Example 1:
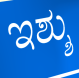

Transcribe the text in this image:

ಇಶ್ಶು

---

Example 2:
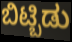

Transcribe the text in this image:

ಬಿಟ್ಬಿಡು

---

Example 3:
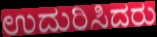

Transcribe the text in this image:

ಉದುರಿಸಿದರು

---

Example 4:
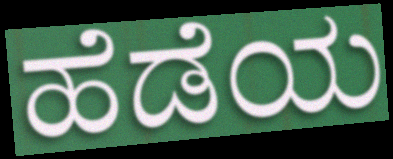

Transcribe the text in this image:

ಹೆಡೆಯ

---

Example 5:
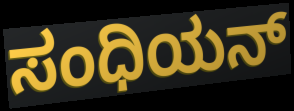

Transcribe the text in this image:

ಸಂಧಿಯನ್